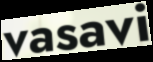
vasavi